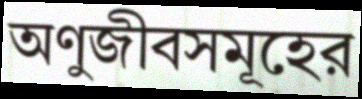
অণুজীবসমূহের